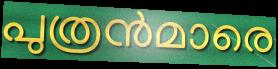
പുത്രൻമാരെ